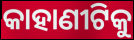
କାହାଣୀଟିକୁ